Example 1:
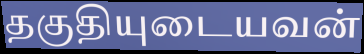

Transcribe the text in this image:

தகுதியுடையவன்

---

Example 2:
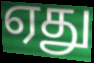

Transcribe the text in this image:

ஏது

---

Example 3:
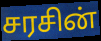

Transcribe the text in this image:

சரசின்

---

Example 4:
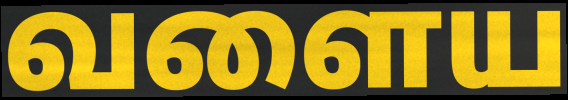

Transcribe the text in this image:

வளைய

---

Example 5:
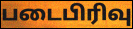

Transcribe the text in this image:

படைபிரிவு